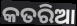
କତରିଆ